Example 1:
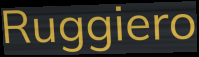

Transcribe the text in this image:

Ruggiero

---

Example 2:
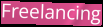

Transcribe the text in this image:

Freelancing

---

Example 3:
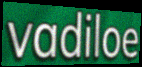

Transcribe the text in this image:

vadiloe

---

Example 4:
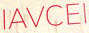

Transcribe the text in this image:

IAVCEI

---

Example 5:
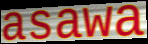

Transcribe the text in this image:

asawa